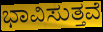
ಭಾವಿಸುತ್ತವೆ